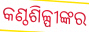
କଣ୍ଠଶିଳ୍ପୀଙ୍କର